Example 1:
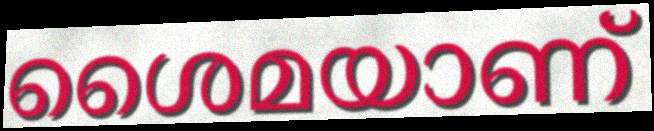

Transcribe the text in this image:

ശൈമയാണ്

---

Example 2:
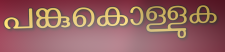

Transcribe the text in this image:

പങ്കുകൊള്ളുക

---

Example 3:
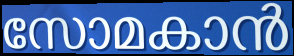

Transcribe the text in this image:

സോമകാൻ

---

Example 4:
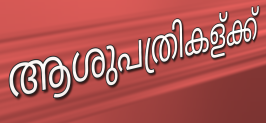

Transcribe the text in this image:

ആശുപത്രികള്ക്ക്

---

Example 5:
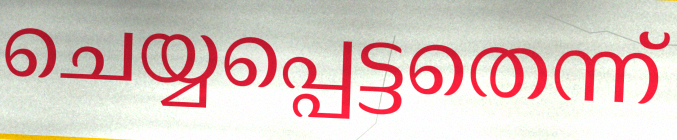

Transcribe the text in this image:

ചെയ്യപ്പെട്ടതെന്ന്